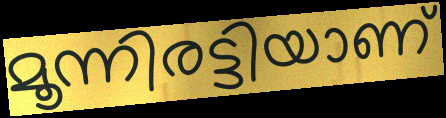
മൂന്നിരട്ടിയാണ്